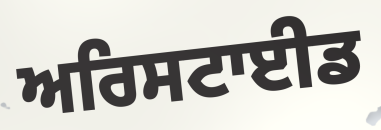
ਅਰਿਸਟਾਈਡ